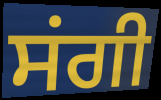
ਸਂਗੀ